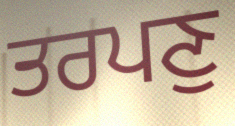
ਤਰਪਣੁ